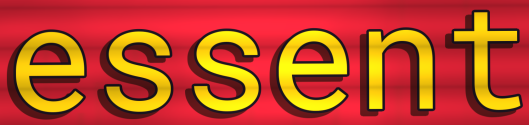
essent